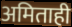
अमिताही